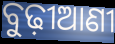
ବୁଢ଼ୀଆଣୀ